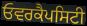
ਓਵਰਕੈਪਸਿਟੀ